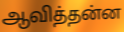
ஆவித்தன்ன